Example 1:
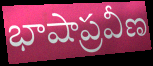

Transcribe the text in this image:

భాషాప్రవీణ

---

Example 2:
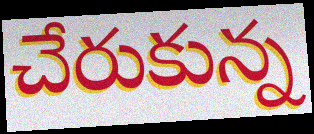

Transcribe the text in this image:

చేరుకున్న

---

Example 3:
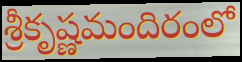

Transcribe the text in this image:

శ్రీకృష్ణమందిరంలో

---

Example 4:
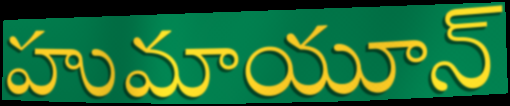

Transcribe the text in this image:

హుమాయూన్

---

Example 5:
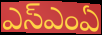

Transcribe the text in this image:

ఎస్ఎంఏ